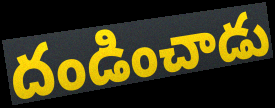
దండించాడు